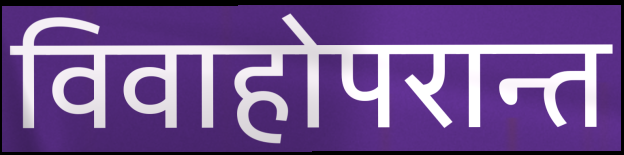
विवाहोपरान्त